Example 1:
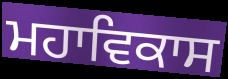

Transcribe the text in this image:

ਮਹਾਵਿਕਾਸ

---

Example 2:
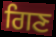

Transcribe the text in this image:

ਗਿਣ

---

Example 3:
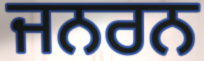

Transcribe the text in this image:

ਜਨਰਨ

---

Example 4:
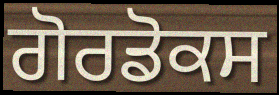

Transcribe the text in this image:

ਗੋਰਡੋਕਸ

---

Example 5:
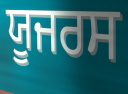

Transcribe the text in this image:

ਯੂਜਰਸ